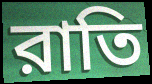
রাতি